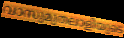
വാസുമുതലാളിയുടെ